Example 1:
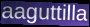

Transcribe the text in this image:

aaguttilla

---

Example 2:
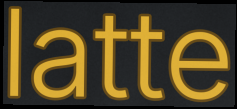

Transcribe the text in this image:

latte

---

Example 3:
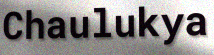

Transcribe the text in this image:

Chaulukya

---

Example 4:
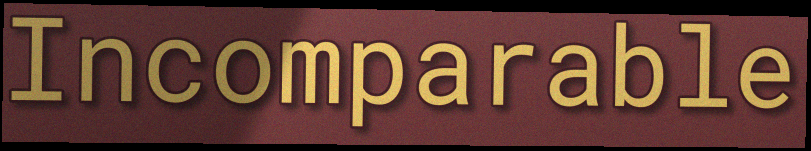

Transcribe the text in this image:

Incomparable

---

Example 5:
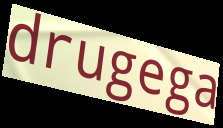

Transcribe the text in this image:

drugega